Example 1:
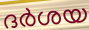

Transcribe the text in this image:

ദർശയ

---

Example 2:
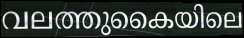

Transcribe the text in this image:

വലത്തുകൈയിലെ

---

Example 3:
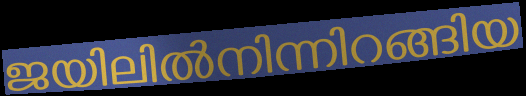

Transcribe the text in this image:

ജയിലിൽനിന്നിറങ്ങിയ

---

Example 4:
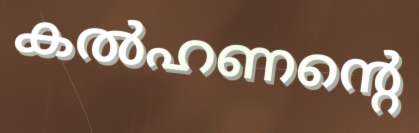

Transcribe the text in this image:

കൽഹണന്റെ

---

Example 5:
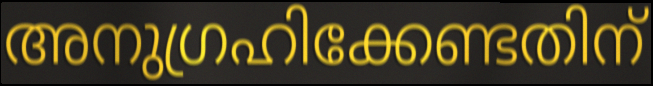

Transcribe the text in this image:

അനുഗ്രഹിക്കേണ്ടതിന്